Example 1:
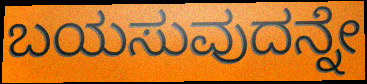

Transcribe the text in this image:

ಬಯಸುವುದನ್ನೇ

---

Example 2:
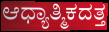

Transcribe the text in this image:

ಆಧ್ಯಾತ್ಮಿಕದತ್ತ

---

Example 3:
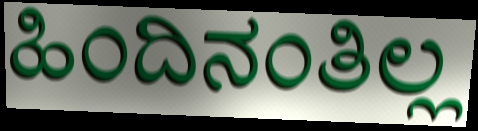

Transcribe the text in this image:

ಹಿಂದಿನಂತಿಲ್ಲ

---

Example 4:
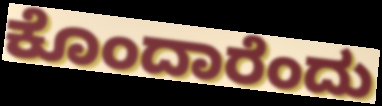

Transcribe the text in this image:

ಕೊಂದಾರೆಂದು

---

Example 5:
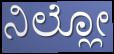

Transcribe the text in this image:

ನಿಲ್ಲೋ